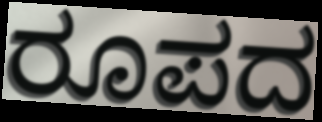
ರೂಪದ